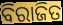
ବିରାଜିତ